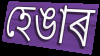
হেঙাৰ